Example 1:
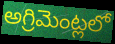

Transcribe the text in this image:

అగ్రిమెంట్లలో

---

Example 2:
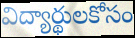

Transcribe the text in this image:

విద్యార్థులకోసం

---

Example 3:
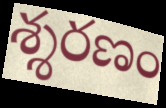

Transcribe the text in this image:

శ్శరణం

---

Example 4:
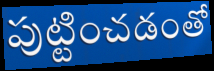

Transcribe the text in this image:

పుట్టించడంతో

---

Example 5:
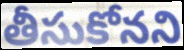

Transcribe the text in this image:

తీసుకోనని